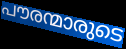
പൗരന്മാരുടെ